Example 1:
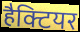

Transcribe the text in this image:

हैक्टियर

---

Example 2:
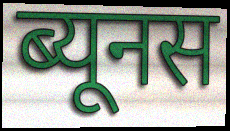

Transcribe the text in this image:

ब्यूनस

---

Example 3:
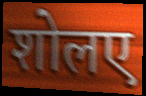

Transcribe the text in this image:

शोलए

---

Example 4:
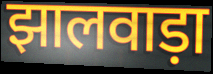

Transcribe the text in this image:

झालवाड़ा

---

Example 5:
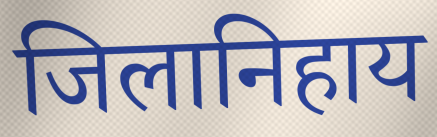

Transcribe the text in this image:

जिलानिहाय